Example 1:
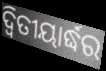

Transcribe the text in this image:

ଦ୍ୱିତୀୟାର୍ଦ୍ଧର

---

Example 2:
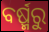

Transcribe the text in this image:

ବର୍ଷ୍ମରୁ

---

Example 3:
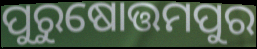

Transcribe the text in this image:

ପୁରୁଷୋତ୍ତମପୁର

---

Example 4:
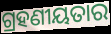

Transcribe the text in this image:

ଗ୍ରହଣୀୟତାର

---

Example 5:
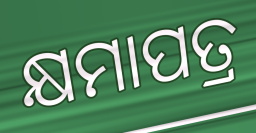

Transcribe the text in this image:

କ୍ଷମାପତ୍ର